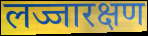
लज्जारक्षण